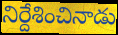
నిర్దేశించినాడు